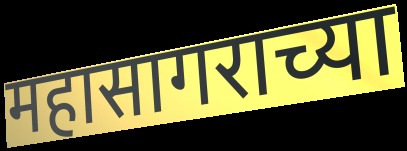
महासागराच्या